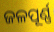
ଜଳପୂର୍ଣ୍ଣ